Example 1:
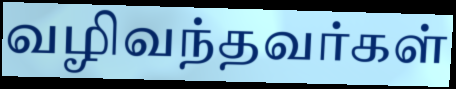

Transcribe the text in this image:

வழிவந்தவர்கள்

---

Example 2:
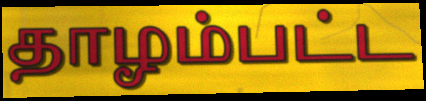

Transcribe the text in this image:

தாழம்பட்ட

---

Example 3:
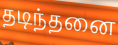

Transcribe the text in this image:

தடிந்தனை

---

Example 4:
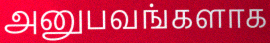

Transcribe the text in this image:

அனுபவங்களாக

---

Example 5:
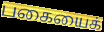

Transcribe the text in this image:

பகையைக்